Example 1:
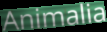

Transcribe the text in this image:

Animalia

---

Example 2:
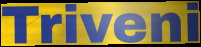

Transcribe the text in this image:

Triveni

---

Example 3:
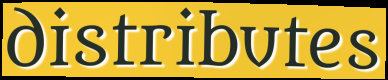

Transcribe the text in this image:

distributes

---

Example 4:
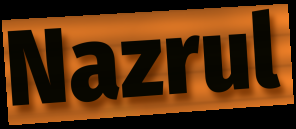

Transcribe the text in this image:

Nazrul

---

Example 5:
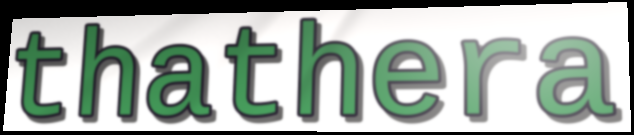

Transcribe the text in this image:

thathera